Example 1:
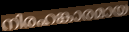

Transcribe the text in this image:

നിരഹങ്കാരമായ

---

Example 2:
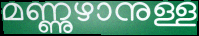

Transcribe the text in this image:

മണ്ണുഴാനുള്ള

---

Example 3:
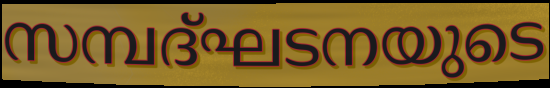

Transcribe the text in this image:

സമ്പദ്ഘടനയുടെ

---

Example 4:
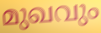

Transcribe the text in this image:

മുഖവും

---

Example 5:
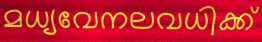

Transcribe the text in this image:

മധ്യവേനലവധിക്ക്